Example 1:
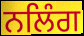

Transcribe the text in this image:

ਨਲਿੰਗ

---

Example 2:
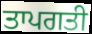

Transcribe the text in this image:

ਤਾਪਗਤੀ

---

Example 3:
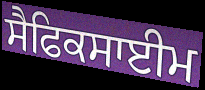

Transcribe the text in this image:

ਸੈਫਿਕਸਾਈਮ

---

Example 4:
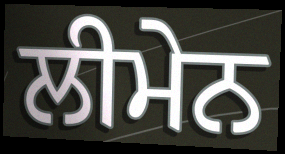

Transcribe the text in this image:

ਲੀਮੇਨ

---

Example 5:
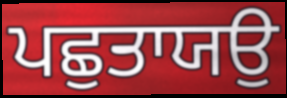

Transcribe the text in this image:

ਪਛੁਤਾਯਉ